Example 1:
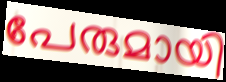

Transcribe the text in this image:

പേരുമായി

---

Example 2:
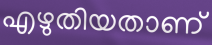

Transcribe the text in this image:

എഴുതിയതാണ്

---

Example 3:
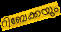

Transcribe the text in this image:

റിബേക്കയും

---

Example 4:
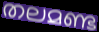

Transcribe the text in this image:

തലമണ്ട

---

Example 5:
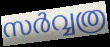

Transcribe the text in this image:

സർവ്വത്ര